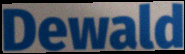
Dewald